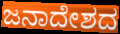
ಜನಾದೇಶದ